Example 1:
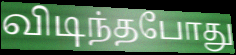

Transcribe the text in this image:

விடிந்தபோது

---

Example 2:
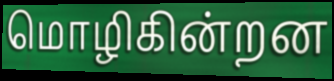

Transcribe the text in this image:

மொழிகின்றன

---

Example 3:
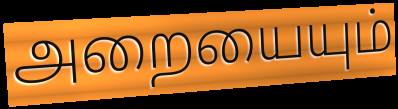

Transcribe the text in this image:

அறையையும்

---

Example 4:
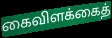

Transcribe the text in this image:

கைவிளக்கைத்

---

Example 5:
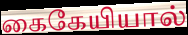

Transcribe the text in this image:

கைகேயியால்